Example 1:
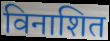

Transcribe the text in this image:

विनाशित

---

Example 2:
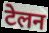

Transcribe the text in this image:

टेलन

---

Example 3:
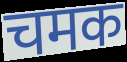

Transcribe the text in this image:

चमक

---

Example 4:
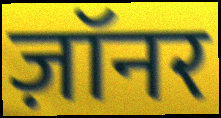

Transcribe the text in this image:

ज़ॉनर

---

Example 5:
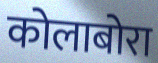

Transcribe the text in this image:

कोलाबोरा